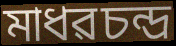
মাধৱচন্দ্ৰ